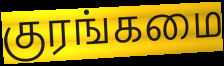
குரங்கமை